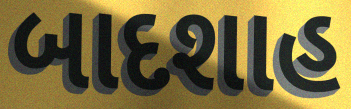
બાદશાહ